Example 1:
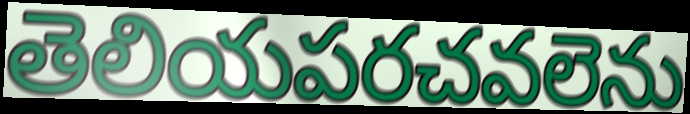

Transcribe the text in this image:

తెలియపరచవలెను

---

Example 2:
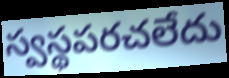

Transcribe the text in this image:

స్వస్థపరచలేదు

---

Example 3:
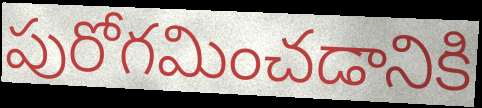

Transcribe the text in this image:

పురోగమించడానికి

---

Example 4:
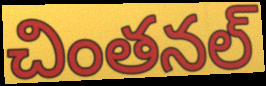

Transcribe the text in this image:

చింతనల్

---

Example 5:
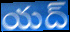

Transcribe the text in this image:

యద్